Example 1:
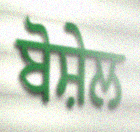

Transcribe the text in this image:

ਬੋਸ਼ੇਲ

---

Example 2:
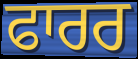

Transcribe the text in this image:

ਫਾਰਰ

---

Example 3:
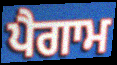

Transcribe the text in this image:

ਪੈਗਾਮ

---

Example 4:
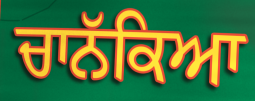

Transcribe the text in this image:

ਚਾਨੱਕਿਆ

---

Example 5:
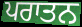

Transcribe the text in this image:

ਪਰਾਤਨ